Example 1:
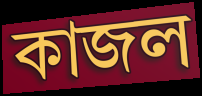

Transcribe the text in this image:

কাজল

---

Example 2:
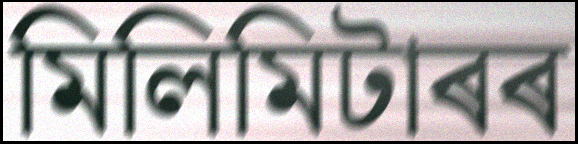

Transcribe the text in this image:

মিলিমিটাৰৰ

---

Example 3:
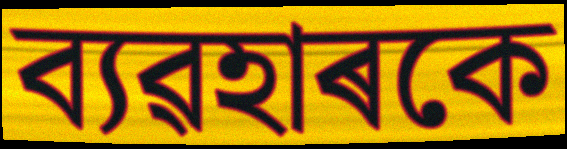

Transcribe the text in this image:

ব্যৱহাৰকে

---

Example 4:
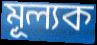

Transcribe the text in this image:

মূল্যক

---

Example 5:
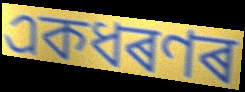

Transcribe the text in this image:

একধৰণৰ